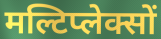
मल्टिप्लेक्सों